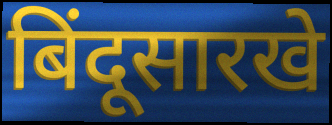
बिंदूसारखे